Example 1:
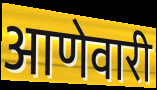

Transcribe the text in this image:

आणेवारी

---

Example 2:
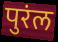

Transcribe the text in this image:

पुरंल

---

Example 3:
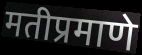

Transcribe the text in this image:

मतीप्रमाणे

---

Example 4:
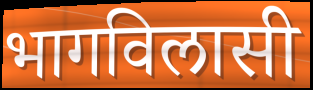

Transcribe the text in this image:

भागविलासी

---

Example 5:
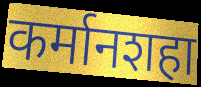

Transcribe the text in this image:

कर्मानशहा